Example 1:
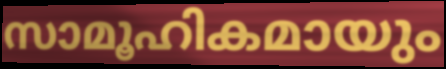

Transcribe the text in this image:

സാമൂഹികമായും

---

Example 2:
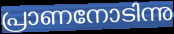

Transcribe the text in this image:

പ്രാണനോടിന്നു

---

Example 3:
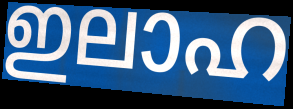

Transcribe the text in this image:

ഇലാഹ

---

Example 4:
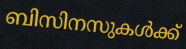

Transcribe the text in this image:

ബിസിനസുകൾക്ക്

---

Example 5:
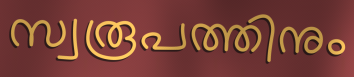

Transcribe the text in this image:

സ്വരൂപത്തിനും